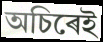
অচিৰেই